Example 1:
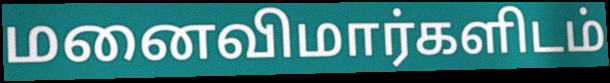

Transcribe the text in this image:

மனைவிமார்களிடம்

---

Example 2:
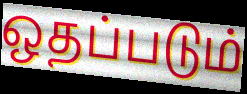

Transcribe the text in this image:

ஒதப்படும்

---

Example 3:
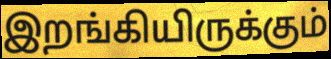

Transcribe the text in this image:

இறங்கியிருக்கும்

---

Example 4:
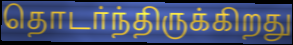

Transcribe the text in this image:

தொடர்ந்திருக்கிறது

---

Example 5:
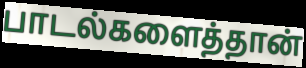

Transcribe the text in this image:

பாடல்களைத்தான்